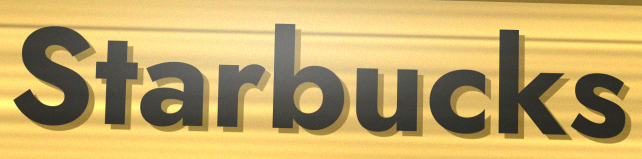
Starbucks